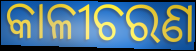
କାଳୀଚରଣ